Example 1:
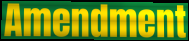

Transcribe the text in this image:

Amendment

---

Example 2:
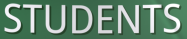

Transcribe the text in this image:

STUDENTS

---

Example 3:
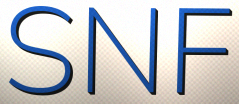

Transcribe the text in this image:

SNF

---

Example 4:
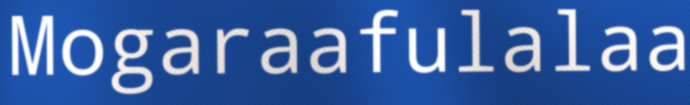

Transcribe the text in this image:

Mogaraafulalaa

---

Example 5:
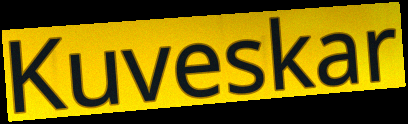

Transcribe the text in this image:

Kuveskar